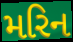
મરિન